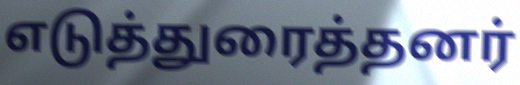
எடுத்துரைத்தனர்